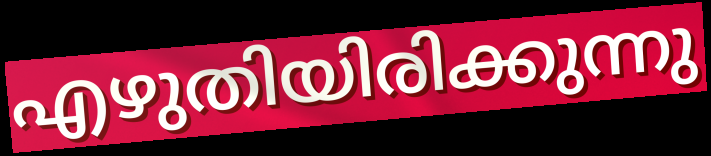
എഴുതിയിരിക്കുന്നു